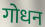
गोधन